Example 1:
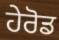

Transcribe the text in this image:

ਹੇਰੋਡ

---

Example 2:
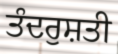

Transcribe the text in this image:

ਤੰਦਰੁਸ਼ਤੀ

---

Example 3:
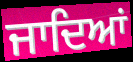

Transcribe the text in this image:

ਜਾਦਿਆਂ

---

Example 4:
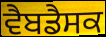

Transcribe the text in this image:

ਵੈਬਡੈਸਕ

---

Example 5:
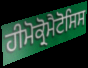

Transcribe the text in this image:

ਹੀਮੋਕ੍ਰੋਮੈਟੋਸਿਸ